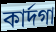
কাৰ্দগা